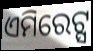
ଏମିରେଟ୍ସ